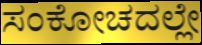
ಸಂಕೋಚದಲ್ಲೇ